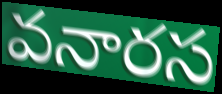
వనారస